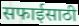
सफाईसाठी